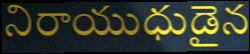
నిరాయుధుడైన